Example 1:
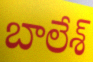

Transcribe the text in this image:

బాలేశ్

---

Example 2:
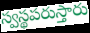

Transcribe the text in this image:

స్వస్థపరుస్తారు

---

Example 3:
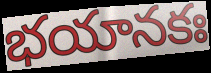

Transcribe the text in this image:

భయానకః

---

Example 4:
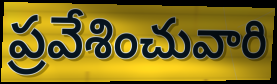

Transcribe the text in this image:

ప్రవేశించువారి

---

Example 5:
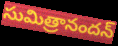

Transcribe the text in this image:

సుమిత్రానందన్